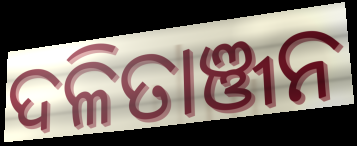
ଦଳିତାଞ୍ଜନ